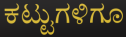
ಕಟ್ಟುಗಳಿಗೂ